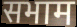
सभाम